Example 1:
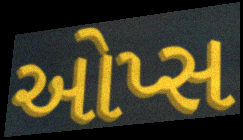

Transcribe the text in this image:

ઓપ્સ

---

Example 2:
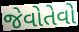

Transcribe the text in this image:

જેવોતેવો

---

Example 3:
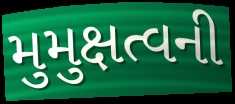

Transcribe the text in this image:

મુમુક્ષત્વની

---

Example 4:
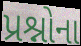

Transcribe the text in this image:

પ્રશ્નોના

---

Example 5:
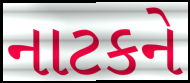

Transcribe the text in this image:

નાટકને